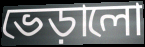
ভেড়ালো